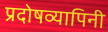
प्रदोषव्यापिनी